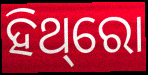
ହିଥ୍‌ରୋ